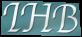
IHB